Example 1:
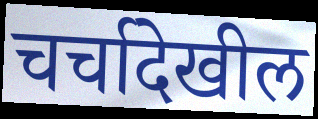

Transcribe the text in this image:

चर्चादेखील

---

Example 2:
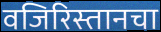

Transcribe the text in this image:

वजिरिस्तानचा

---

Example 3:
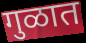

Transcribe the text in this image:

गुळात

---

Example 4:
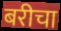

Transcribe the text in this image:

बरीचा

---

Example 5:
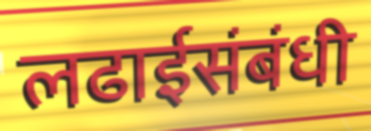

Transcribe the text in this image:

लढाईसंबंधी